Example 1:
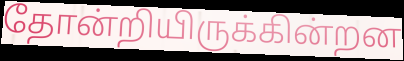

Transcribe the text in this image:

தோன்றியிருக்கின்றன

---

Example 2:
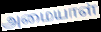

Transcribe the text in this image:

அமையாள்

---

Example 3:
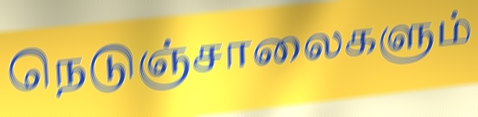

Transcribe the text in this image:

நெடுஞ்சாலைகளும்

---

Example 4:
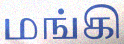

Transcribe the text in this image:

மங்கி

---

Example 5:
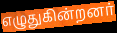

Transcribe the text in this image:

எழுதுகின்றனர்